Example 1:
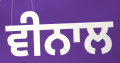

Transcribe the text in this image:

ਵੀਨਾਲ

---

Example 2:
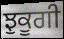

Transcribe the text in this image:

ਝੁਕੂਗੀ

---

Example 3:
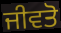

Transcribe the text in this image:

ਜੀਵਤੋ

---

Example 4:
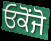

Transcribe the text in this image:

ਓਕੋਂਜੋ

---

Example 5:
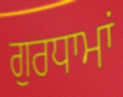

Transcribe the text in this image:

ਗੁਰਧਾਮਾਂ